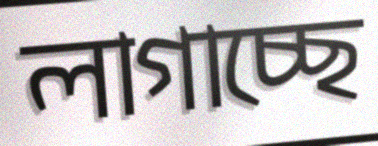
লাগাচ্ছে